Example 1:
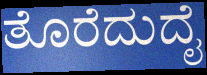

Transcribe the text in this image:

ತೊರೆದುದೈ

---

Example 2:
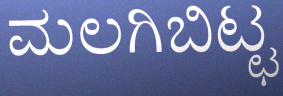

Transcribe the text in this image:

ಮಲಗಿಬಿಟ್ಟ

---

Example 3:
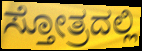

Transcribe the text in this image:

ಸ್ತೋತ್ರದಲ್ಲಿ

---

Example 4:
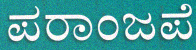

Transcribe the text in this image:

ಪರಾಂಜಪೆ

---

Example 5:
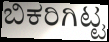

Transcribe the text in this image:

ಬಿಕರಿಗಿಟ್ಟ